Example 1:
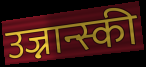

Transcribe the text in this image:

उज्नान्स्की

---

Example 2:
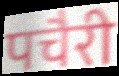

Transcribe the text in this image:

पचैरी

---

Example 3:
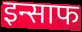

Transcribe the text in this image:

इन्साफ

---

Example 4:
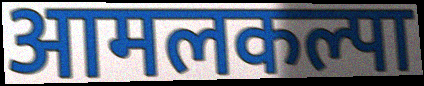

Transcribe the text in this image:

आमलकल्पा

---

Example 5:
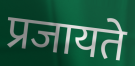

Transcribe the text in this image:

प्रजायते